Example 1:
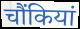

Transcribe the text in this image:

चौंकियां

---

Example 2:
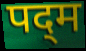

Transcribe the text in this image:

पद्‌म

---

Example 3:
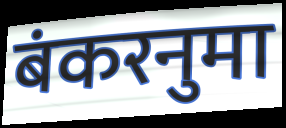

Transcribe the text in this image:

बंकरनुमा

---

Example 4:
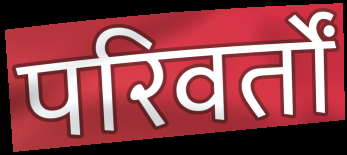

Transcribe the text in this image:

परिवर्तों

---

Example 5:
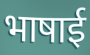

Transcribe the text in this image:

भाषाई